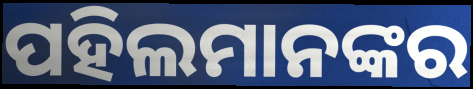
ପହିଲମାନଙ୍କର